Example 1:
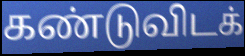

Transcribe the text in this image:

கண்டுவிடக்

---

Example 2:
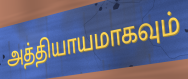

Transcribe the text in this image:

அத்தியாயமாகவும்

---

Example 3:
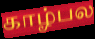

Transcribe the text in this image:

காழ்பல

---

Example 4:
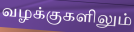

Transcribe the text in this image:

வழக்குகளிலும்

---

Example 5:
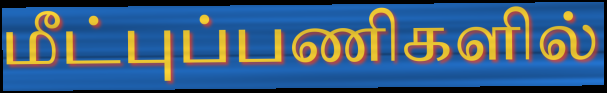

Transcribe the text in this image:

மீட்புப்பணிகளில்